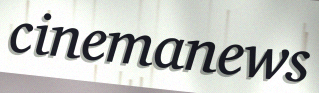
cinemanews